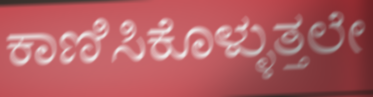
ಕಾಣಿಸಿಕೊಳ್ಳುತ್ತಲೇ